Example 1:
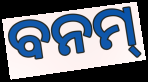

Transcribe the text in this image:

ବନମ୍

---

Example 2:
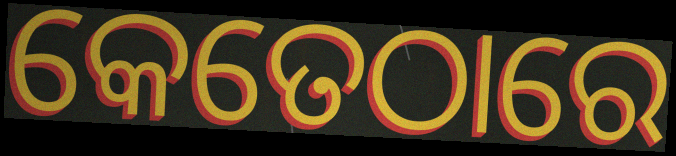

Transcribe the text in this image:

କେତେଠାରେ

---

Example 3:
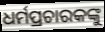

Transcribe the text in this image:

ଧର୍ମପ୍ରଚାରକଙ୍କୁ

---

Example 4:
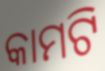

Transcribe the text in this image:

କାମଟି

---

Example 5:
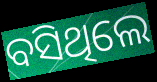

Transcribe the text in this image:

ବସିଥିଲେ